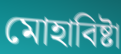
মোহাবিষ্টা